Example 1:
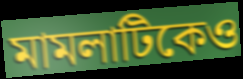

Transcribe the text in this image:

মামলাটিকেও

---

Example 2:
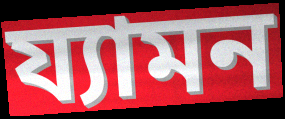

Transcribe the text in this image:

য্যামন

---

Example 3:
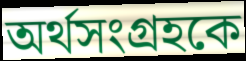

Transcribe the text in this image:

অর্থসংগ্রহকে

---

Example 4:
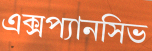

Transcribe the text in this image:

এক্সপ্যানসিভ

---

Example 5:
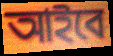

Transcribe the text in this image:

আইবে